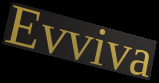
Evviva